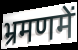
भ्रमणमें